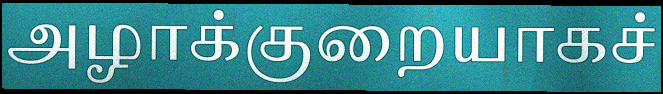
அழாக்குறையாகச்